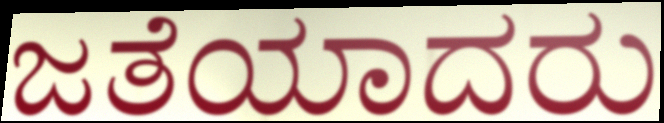
ಜತೆಯಾದರು